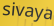
sivaya